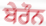
ਬੇਰੌਨ